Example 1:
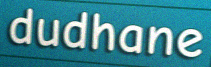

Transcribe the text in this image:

dudhane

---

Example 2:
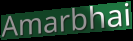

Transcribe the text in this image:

Amarbhai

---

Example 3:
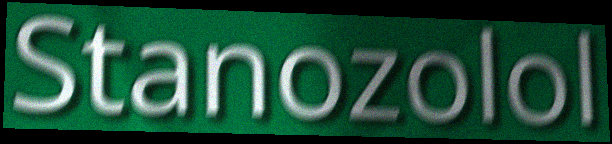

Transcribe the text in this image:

Stanozolol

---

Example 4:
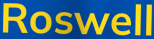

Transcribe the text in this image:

Roswell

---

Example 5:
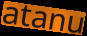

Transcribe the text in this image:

atanu